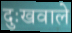
दुःखवाले